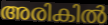
അരികിൽ